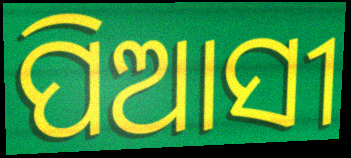
ପିଆସୀ